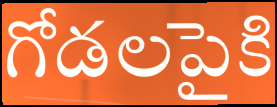
గోడలపైకి